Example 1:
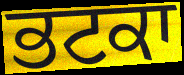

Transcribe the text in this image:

ਭਟਕਾ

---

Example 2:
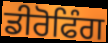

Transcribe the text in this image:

ਡੀਰੋਫਿੰਗ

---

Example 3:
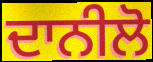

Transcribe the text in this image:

ਦਾਨੀਲੋ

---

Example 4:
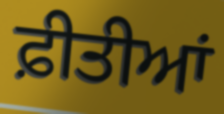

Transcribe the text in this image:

ਫ਼ੀਤੀਆਂ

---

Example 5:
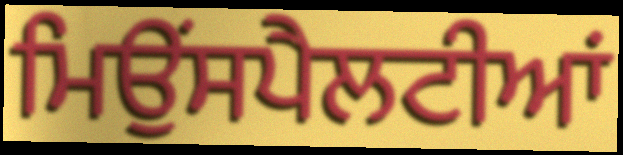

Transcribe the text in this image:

ਮਿਉਂਸਪੈਲਟੀਆਂ